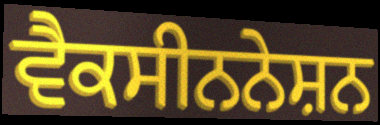
ਵੈਕਸੀਨਨੇਸ਼ਨ